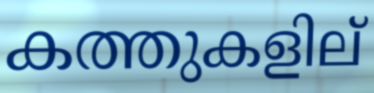
കത്തുകളില്